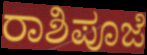
ರಾಶಿಪೂಜೆ